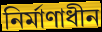
নির্মাণাধীন